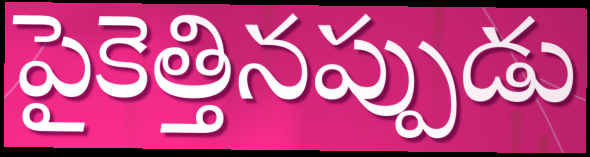
పైకెత్తినప్పుడు